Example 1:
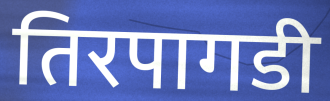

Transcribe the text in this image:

तिरपागडी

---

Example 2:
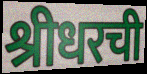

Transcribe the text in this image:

श्रीधरची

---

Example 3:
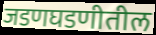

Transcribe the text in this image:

जडणघडणीतील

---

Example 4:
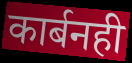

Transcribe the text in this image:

कार्बनही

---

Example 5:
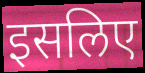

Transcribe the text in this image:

इसलिए